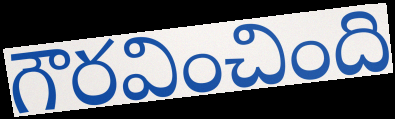
గౌరవించింది